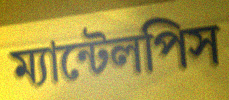
ম্যান্টেলপিস